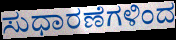
ಸುಧಾರಣೆಗಳಿಂದ